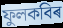
ফুলকবিৰ